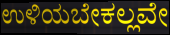
ಉಳಿಯಬೇಕಲ್ಲವೇ